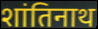
शांतिनाथ